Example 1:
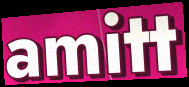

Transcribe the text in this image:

amitt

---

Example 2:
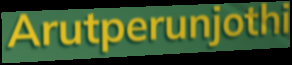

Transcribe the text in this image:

Arutperunjothi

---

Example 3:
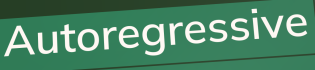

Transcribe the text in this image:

Autoregressive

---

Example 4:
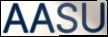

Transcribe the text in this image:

AASU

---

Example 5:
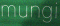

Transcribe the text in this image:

mungi